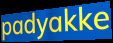
padyakke